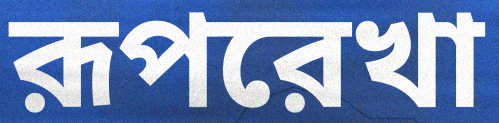
রূপরেখা